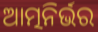
ଆତ୍ମନିର୍ଭର